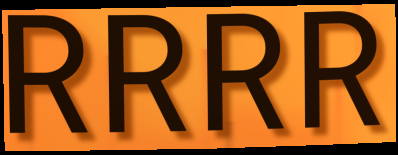
RRRR